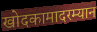
खोदकामादरम्यान